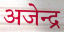
अजेन्द्र